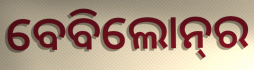
ବେବିଲୋନ୍‌ର